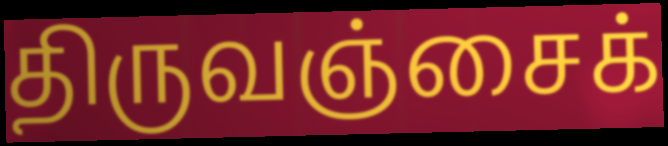
திருவஞ்சைக்